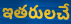
ఇతరులచే